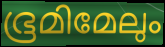
ഭൂമിമേലും